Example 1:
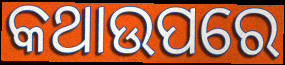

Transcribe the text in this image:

କଥାଉପରେ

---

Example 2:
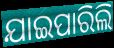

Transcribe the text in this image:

ଯାଇପାରିଲି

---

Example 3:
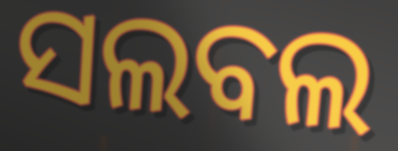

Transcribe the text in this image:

ସଲବଲ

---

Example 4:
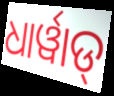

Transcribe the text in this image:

ଧାର୍ୱାଡ୍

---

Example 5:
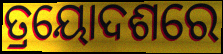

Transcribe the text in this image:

ତ୍ରୟୋଦଶରେ